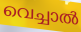
വെച്ചാൽ